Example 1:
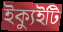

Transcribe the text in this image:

ইক্যুইটি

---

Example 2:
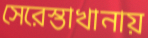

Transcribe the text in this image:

সেরেস্তাখানায়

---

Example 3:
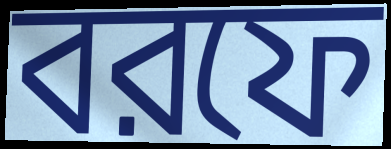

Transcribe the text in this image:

বরফে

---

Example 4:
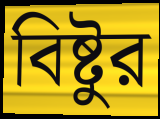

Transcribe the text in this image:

বিষ্টুর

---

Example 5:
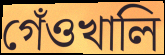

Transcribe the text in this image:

গেঁওখালি